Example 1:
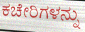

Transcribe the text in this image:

ಕಚೇರಿಗಳನ್ನು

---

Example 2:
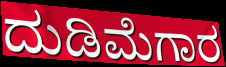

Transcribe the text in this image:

ದುಡಿಮೆಗಾರ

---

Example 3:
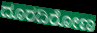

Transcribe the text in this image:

ದೂರದಿರೋಣ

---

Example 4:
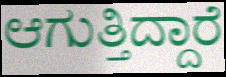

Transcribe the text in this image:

ಆಗುತ್ತಿದ್ದಾರೆ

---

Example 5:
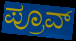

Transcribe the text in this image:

ಪ್ರೂವ್